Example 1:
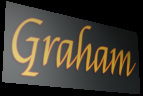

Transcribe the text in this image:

Graham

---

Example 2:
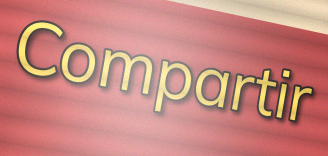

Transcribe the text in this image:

Compartir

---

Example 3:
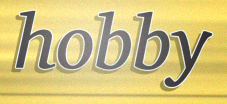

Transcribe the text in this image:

hobby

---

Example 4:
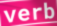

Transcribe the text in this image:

verb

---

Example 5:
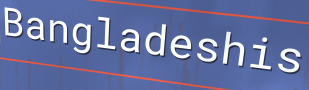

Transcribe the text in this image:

Bangladeshis